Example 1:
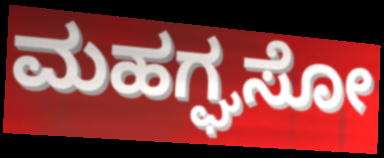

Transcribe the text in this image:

ಮಹಗ್ಘಸೋ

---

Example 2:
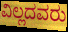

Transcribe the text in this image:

ವಿಲ್ಲದವರು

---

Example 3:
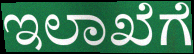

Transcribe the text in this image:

ಇಲಾಖೆಗೆ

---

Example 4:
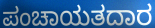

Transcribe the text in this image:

ಪಂಚಾಯತದಾರ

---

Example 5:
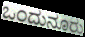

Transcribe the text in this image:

ಒಂದುನೂರು